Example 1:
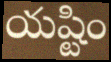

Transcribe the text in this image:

యష్టిం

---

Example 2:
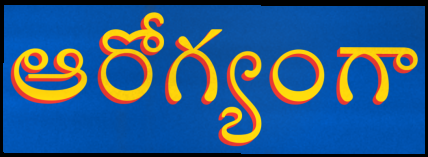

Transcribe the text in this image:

ఆరోగ్యంగా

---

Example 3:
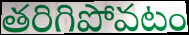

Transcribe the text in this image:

తరిగిపోవటం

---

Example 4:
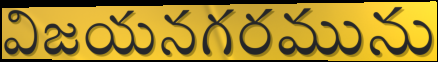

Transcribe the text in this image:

విజయనగరమును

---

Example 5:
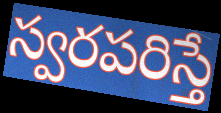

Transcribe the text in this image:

స్వరపరిస్తే